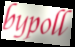
bypoll